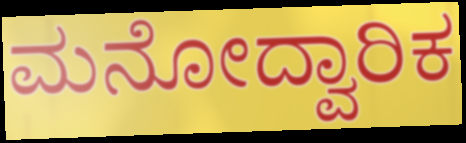
ಮನೋದ್ವಾರಿಕ